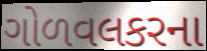
ગોળવલકરના